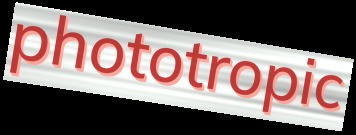
phototropic